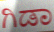
ಗಿಡಾ